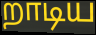
றாடிய